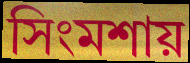
সিংমশায়